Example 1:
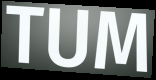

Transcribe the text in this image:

TUM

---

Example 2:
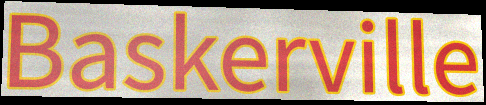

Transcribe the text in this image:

Baskerville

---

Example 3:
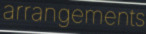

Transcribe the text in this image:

arrangements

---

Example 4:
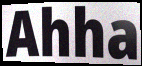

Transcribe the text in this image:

Ahha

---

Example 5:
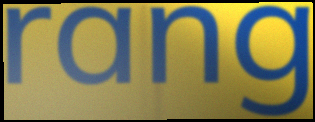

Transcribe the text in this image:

rang